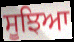
ਸੂਝਿਆ